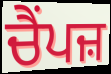
ਚੈਂਪਜ਼